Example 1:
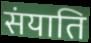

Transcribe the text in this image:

संयाति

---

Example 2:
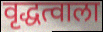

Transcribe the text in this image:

वृद्धत्वाला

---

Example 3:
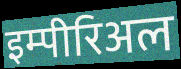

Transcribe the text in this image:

इम्पीरिअल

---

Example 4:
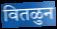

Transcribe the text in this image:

वितळुन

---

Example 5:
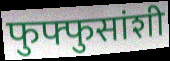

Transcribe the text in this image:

फुफ्फुसांशी